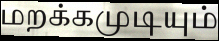
மறக்கமுடியும்